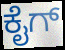
ಕೈಗ್